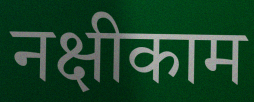
नक्षीकाम